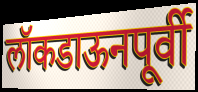
लॉकडाऊनपूर्वी